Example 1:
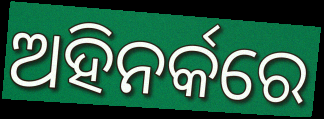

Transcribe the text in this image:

ଅହିନର୍କରେ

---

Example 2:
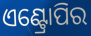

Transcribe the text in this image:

ଏଣ୍ଟ୍ରୋପିର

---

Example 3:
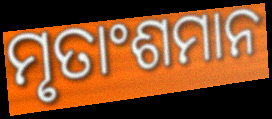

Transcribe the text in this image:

ମୃତାଂଶମାନ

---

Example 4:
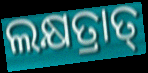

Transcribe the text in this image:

ଲକ୍ଷତ୍ରାତ୍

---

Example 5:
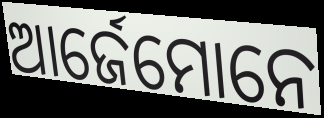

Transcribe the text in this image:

ଆର୍ଜେମୋନେ